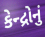
કેન્દ્રોનું